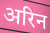
अरिन